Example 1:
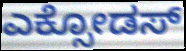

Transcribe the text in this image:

ಎಕ್ಸೋಡಸ್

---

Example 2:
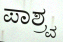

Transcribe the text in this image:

ಪಾಶ್ರ್ವ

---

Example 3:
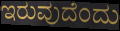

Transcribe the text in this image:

ಇರುವುದೆಂದು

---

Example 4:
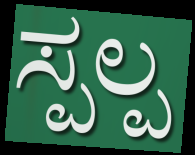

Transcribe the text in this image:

ಸ್ಪಲ್ಪ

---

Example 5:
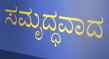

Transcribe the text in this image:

ಸಮೃದ್ಧವಾದ